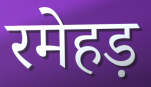
रमेहड़